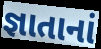
જ્ઞાતાનાં